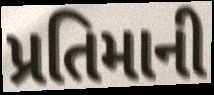
પ્રતિમાની